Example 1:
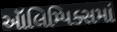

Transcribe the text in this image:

ઑલિમ્પિક્સમાં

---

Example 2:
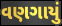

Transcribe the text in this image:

વણગાયું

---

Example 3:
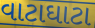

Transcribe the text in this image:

વાટાઘાટા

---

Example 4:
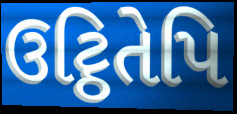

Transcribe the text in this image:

ઉટ્ઠિતેપિ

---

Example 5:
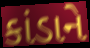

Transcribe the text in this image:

કાંડાને